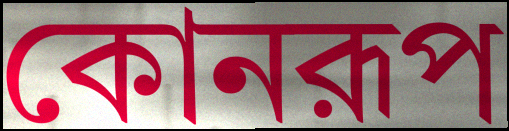
কোনরূপ